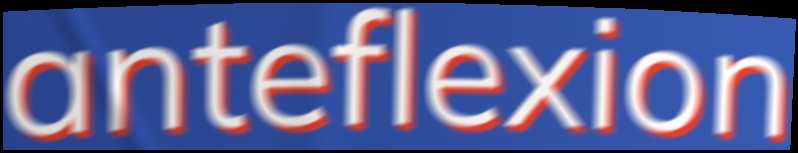
anteflexion